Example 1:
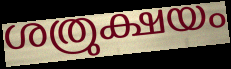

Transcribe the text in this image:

ശത്രുക്ഷയം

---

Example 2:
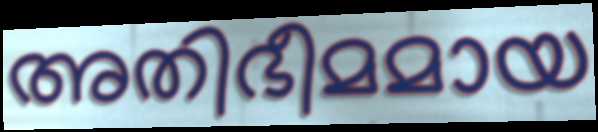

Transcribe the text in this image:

അതിഭീമമായ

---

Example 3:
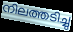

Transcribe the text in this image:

നിലത്തടിച്ചു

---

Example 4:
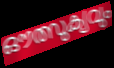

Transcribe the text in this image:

ഔത്സുക്യവും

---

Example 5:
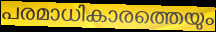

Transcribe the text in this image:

പരമാധികാരത്തെയും